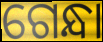
ଗେନ୍ଧା